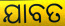
ଯାବତ